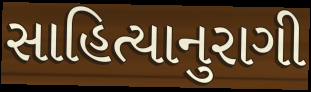
સાહિત્યાનુરાગી